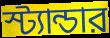
স্ট্যান্ডার